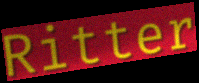
Ritter